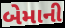
બેમાની